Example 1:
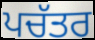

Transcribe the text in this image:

ਪਚੱਤਰ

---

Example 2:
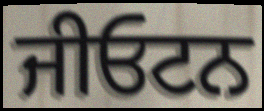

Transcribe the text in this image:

ਜੀਓਟਨ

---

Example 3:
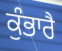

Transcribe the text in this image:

ਕੁੰਭਾਰੈ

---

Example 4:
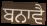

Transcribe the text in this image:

ਬਨਾਵੈ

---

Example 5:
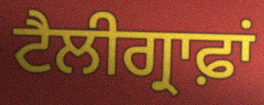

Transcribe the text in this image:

ਟੈਲੀਗ੍ਰਾਫ਼ਾਂ